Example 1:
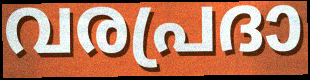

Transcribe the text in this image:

വരപ്രദാ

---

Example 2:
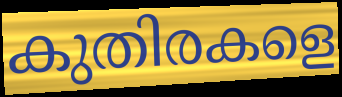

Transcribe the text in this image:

കുതിരകളെ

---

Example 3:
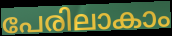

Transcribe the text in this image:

പേരിലാകാം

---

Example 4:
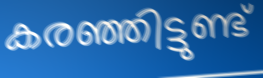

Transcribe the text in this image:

കരഞ്ഞിട്ടുണ്ട്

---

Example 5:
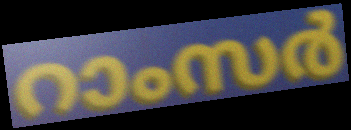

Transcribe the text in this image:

റാംസർ